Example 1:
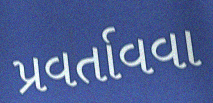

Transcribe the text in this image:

પ્રવર્તાવવા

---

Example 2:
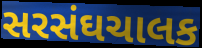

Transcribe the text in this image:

સરસંઘચાલક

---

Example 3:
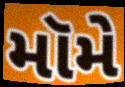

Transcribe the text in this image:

મૉમે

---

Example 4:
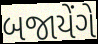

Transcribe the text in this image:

બજાયેંગે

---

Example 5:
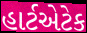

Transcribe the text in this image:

હાર્ટએટેક